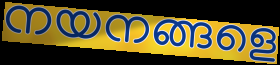
നയനങ്ങളെ